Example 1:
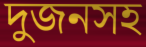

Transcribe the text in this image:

দুজনসহ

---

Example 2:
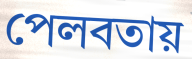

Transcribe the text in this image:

পেলবতায়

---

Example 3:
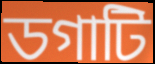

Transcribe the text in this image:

ডগাটি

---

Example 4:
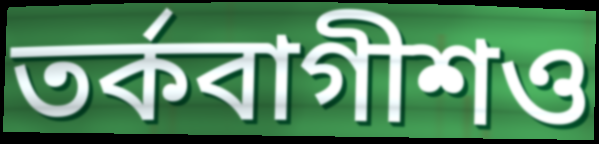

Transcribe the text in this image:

তর্কবাগীশও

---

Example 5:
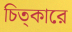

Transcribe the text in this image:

চিত্কারে